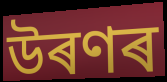
উৰণৰ